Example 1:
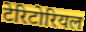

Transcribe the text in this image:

टेरिटोरियल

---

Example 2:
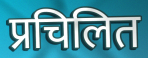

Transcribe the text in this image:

प्रचिलित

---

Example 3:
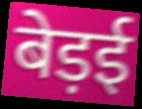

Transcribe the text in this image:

बेड़ई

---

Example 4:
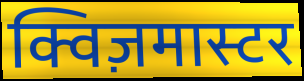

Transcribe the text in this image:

क्विज़मास्टर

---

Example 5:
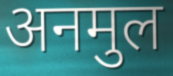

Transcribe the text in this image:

अनमुल